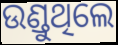
ଉଣ୍ଡୁଥିଲେ